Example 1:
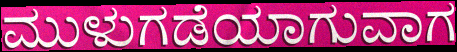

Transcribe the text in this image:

ಮುಳುಗಡೆಯಾಗುವಾಗ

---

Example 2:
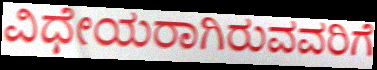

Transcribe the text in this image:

ವಿಧೇಯರಾಗಿರುವವರಿಗೆ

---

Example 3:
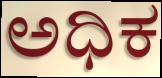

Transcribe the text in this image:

ಅಧಿಕ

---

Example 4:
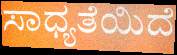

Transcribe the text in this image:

ಸಾಧ್ಯತೆಯಿದೆ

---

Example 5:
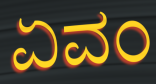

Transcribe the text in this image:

ಏವಂ